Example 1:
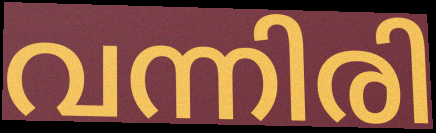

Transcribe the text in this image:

വന്നിരി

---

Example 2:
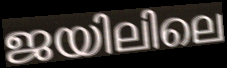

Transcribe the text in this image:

ജയിലിലെ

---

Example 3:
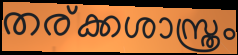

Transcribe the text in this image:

തര്ക്കശാസ്ത്രം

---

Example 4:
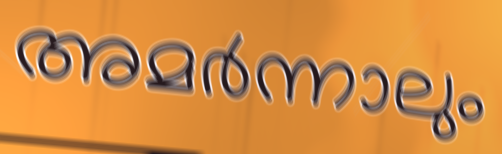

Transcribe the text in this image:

അമർന്നാലും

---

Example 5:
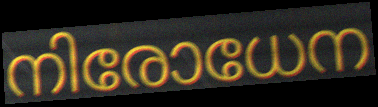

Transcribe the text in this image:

നിരോധേന